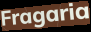
Fragaria